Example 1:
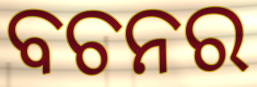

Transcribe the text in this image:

ବଚନର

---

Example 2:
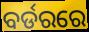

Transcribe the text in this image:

ବର୍ଡରରେ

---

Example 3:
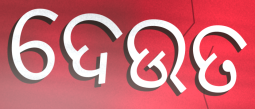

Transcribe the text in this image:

ଦେଉତ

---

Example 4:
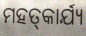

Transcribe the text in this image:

ମହତ୍‌କାର୍ଯ୍ୟ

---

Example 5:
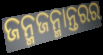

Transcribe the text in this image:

ଜନ୍ମଜନ୍ମାନ୍ତରର